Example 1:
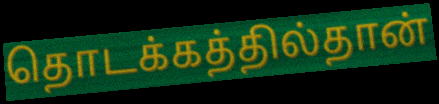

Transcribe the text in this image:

தொடக்கத்தில்தான்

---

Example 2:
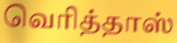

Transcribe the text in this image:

வெரித்தாஸ்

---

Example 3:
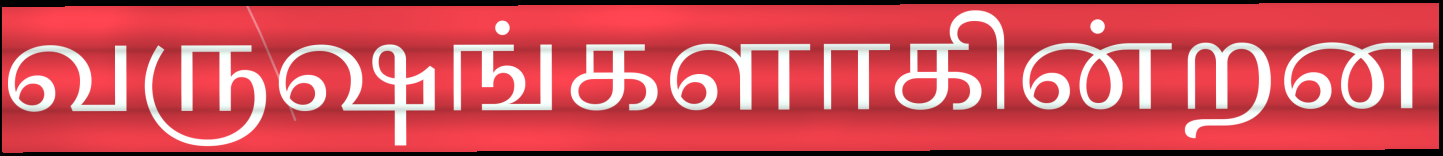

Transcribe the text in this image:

வருஷங்களாகின்றன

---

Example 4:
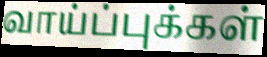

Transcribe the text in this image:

வாய்ப்புக்கள்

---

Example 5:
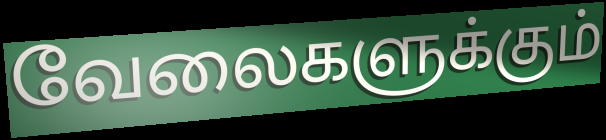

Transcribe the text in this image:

வேலைகளுக்கும்